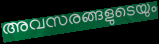
അവസരങ്ങളുടെയും